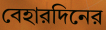
বেহারদিনের